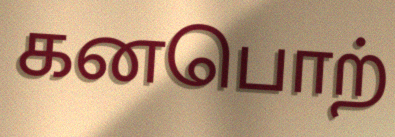
கனபொற்